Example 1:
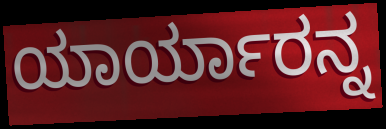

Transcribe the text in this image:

ಯಾರ್ಯಾರನ್ನ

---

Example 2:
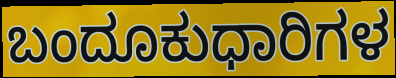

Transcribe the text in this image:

ಬಂದೂಕುಧಾರಿಗಳ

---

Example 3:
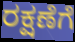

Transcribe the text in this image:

ರಕ್ಷಣೆಗೆ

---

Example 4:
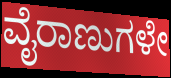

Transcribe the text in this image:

ವೈರಾಣುಗಳೇ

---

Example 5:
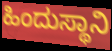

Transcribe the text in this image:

ಹಿಂದುಸ್ಥಾನಿ